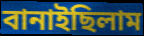
বানাইছিলাম